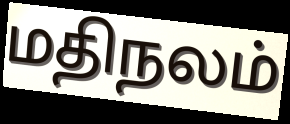
மதிநலம்